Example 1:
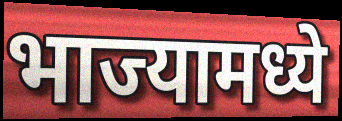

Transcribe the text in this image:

भाज्यामध्ये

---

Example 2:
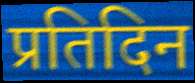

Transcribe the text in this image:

प्रतिदिन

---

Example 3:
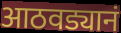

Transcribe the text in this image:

आठवड्यानं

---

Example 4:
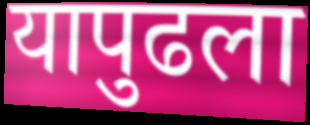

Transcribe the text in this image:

यापुढला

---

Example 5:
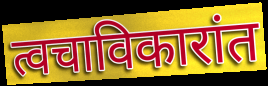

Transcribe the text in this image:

त्वचाविकारांत